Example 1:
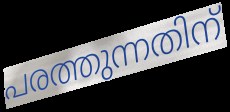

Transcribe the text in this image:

പരത്തുന്നതിന്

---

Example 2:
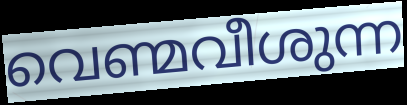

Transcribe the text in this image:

വെണ്മവീശുന്ന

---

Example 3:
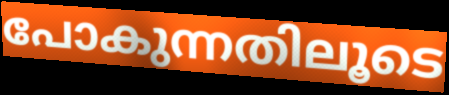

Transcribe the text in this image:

പോകുന്നതിലൂടെ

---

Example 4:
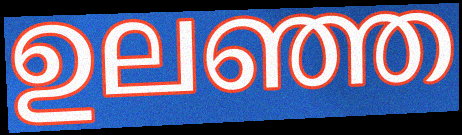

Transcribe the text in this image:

ഉലഞ്ഞ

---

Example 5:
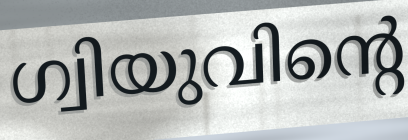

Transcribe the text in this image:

ഗ്വിയുവിന്റെ